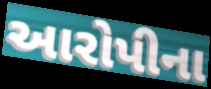
આરોપીના